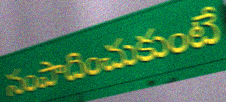
సంపాదించుకుంటే